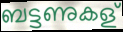
ബട്ടണുകള്